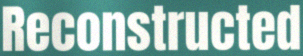
Reconstructed